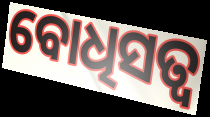
ବୋଧିସତ୍ୱ